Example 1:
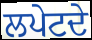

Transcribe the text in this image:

ਲਪੇਟਦੇ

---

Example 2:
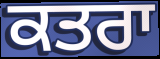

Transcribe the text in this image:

ਕਤਰਾ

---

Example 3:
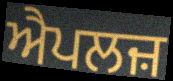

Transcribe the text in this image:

ਐਪਲਜ਼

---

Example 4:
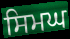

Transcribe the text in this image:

ਸਿਮਘ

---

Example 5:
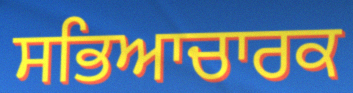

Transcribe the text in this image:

ਸਭਿਆਚਾਰਕ